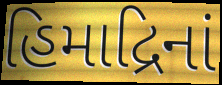
હિમાદ્રિનાં